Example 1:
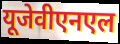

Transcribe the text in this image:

यूजेवीएनएल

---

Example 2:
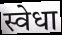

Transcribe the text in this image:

स्वेधा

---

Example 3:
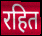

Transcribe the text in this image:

रहित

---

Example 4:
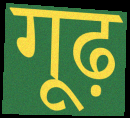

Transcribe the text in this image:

गूढ़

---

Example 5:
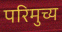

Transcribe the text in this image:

परिमुच्य